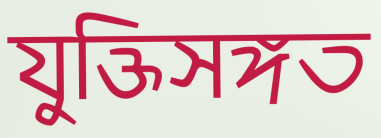
যুক্তিসঙ্গত